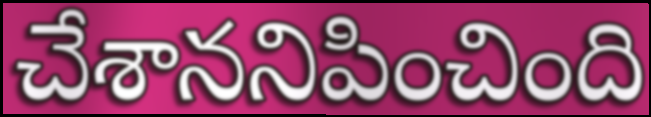
చేశాననిపించింది